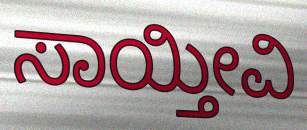
ಸಾಯ್ತೀವಿ